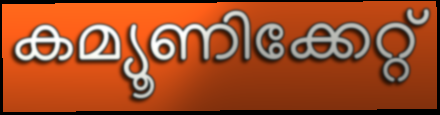
കമ്യൂണിക്കേറ്റ്